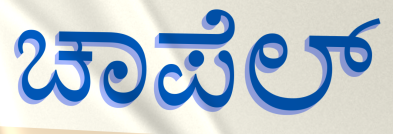
ಚಾಪೆಲ್